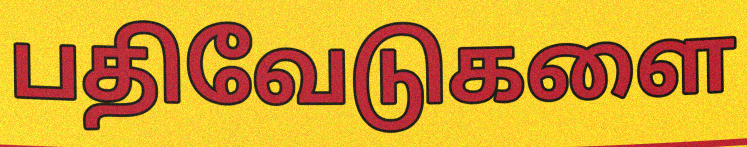
பதிவேடுகளை